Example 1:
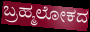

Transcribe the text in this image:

ಬ್ರಹ್ಮಲೋಕದ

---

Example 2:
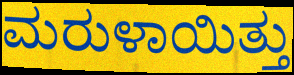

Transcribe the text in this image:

ಮರುಳಾಯಿತ್ತು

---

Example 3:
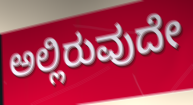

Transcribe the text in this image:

ಅಲ್ಲಿರುವುದೇ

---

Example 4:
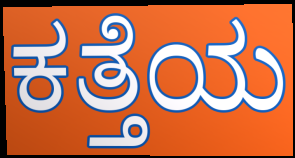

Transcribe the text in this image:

ಕತ್ತೆಯ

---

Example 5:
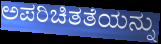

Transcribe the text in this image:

ಅಪರಿಚಿತತೆಯನ್ನು